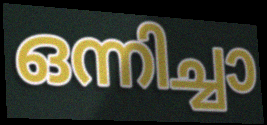
ഒന്നിച്ചാ